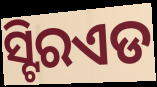
ସ୍ଟିରଏଡ